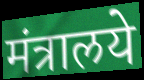
मंत्रालये